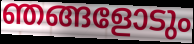
ഞങ്ങളോടും